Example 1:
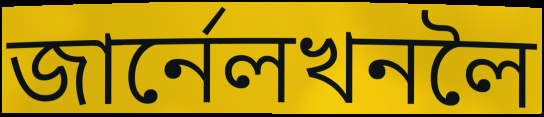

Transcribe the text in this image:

জাৰ্নেলখনলৈ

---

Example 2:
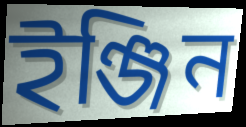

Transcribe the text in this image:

ইঞ্জিন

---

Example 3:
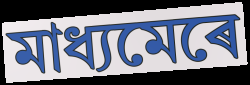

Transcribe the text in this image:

মাধ্যমেৰে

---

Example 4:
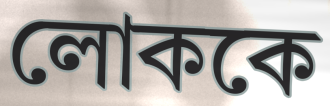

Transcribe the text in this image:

লোককে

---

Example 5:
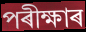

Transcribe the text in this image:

পৰীক্ষাৰ